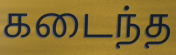
கடைந்த